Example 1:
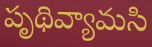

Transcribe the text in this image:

పృథివ్యామసి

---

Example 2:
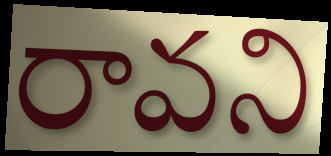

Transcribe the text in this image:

రావని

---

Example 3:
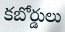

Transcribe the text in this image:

కబోర్డులు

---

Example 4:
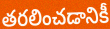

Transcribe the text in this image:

తరలించడానికీ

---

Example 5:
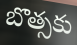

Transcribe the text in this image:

బొత్సకు